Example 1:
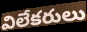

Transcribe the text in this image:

విలేకరులు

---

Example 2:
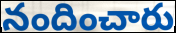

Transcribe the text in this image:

నందించారు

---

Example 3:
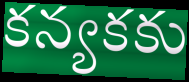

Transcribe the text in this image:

కన్యకకు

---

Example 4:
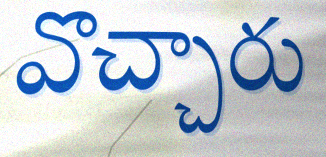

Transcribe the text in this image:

వొచ్చారు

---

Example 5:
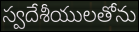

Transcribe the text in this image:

స్వదేశీయులతోను